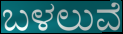
ಬಳಲುವೆ